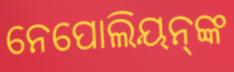
ନେପୋଲିୟନ୍‍ଙ୍କ